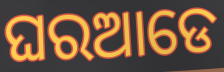
ଘରଆଡେ